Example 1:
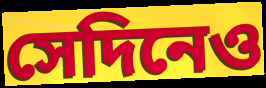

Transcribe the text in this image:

সেদিনেও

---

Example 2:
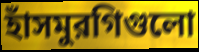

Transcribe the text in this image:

হাঁসমুরগিগুলো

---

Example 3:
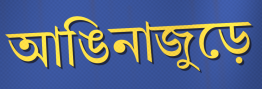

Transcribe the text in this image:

আঙিনাজুড়ে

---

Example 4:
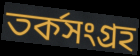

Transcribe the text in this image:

তর্কসংগ্রহ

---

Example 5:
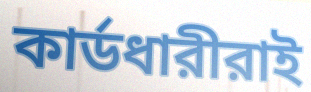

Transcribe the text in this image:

কার্ডধারীরাই